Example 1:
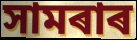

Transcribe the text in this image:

সামৰাৰ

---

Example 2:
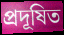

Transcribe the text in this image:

প্ৰদূষিত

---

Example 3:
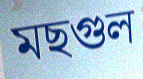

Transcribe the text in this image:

মছগুল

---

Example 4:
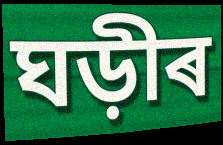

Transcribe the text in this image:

ঘড়ীৰ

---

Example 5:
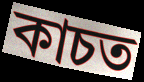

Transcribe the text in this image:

কাচত